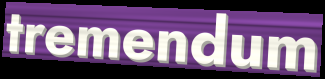
tremendum